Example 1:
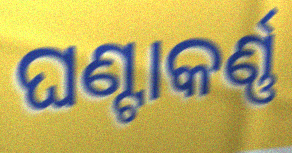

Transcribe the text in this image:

ଘଣ୍ଟାକର୍ଣ୍ଣ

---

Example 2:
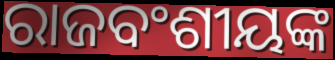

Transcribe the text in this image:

ରାଜବଂଶୀୟଙ୍କ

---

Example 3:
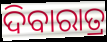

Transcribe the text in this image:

ଦିବାରାତ୍ର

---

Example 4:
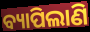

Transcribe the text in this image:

ବ୍ୟାପିଲାଣି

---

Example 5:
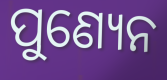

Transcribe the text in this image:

ପୁଣ୍ୟେନ